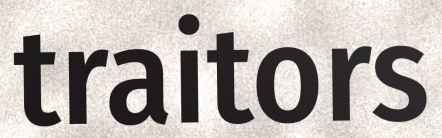
traitors